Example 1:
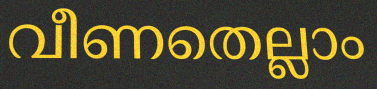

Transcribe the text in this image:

വീണതെല്ലാം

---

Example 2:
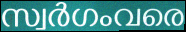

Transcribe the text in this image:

സ്വർഗംവരെ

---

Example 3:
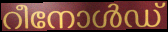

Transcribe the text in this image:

റീനോൾഡ്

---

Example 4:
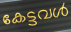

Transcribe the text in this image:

കേട്ടവൾ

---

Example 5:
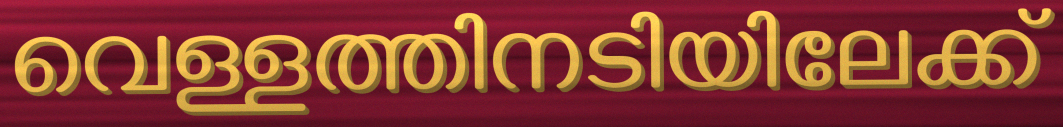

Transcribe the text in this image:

വെള്ളത്തിനടിയിലേക്ക്